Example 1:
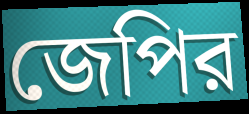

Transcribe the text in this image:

জেপির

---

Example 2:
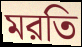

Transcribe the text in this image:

মরতি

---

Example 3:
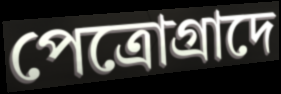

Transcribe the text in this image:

পেত্রোগ্রাদে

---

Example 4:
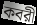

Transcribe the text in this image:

কবরী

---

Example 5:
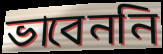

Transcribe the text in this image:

ভাবেননি